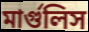
মার্গুলিস